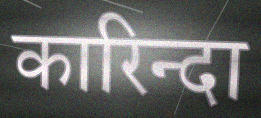
कारिन्दा